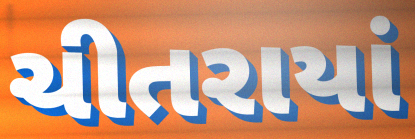
ચીતરાયાં